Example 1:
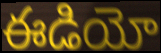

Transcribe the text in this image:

ఈడియో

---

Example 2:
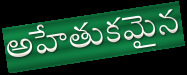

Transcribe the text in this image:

అహేతుకమైన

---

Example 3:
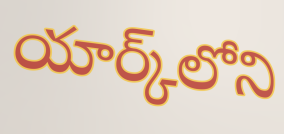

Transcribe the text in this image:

యార్క్‌లోని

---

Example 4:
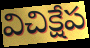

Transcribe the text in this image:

విచిక్షేప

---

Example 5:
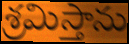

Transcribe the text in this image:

శ్రమిస్తాను